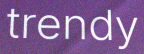
trendy